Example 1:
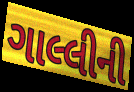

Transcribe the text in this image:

ગાલ્લીની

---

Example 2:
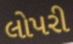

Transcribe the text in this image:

લોપરી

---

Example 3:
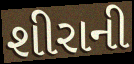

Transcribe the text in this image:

શીરાની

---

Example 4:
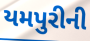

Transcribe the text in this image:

યમપુરીની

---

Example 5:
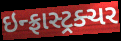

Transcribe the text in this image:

ઇન્ફ્રાસ્ટ્રક્ચર